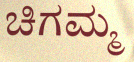
ಚಿಗಮ್ಮ